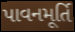
પાવનમૂર્તિ